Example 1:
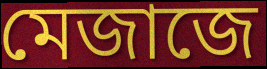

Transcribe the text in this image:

মেজাজে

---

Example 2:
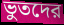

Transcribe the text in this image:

ভুতদের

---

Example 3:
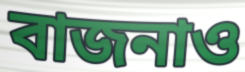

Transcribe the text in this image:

বাজনাও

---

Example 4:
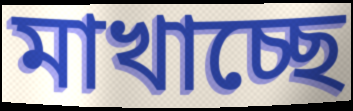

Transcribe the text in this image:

মাখাচ্ছে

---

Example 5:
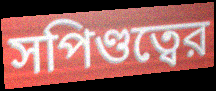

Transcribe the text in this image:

সপিণ্ডত্বের